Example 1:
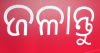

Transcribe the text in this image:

ଜଳାନ୍ତୁ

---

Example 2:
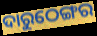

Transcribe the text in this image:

ଦାରୁଠେଙ୍ଗର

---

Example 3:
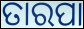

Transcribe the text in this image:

ତାରପା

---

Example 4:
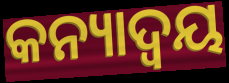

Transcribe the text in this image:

କନ୍ୟାଦ୍ୱୟ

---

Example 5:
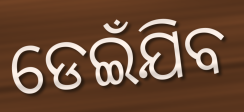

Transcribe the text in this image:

ଡେଇଁଯିବ